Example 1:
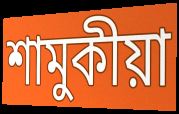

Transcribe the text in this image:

শামুকীয়া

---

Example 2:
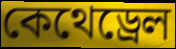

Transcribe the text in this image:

কেথেড্ৰেল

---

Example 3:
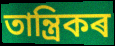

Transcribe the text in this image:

তান্ত্ৰিকৰ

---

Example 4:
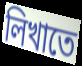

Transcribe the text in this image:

লিখাতে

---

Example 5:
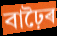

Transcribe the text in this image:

বাঢ়ৈৰ